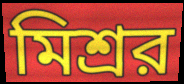
মিশ্রর